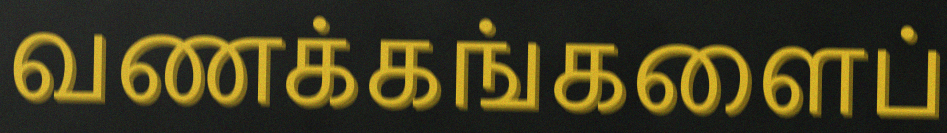
வணக்கங்களைப்